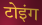
टोइंग